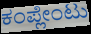
ಕಂಪ್ಲೇಂಟು